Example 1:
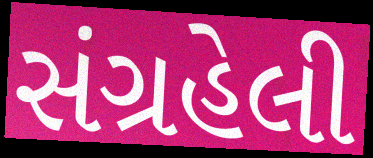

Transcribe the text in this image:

સંગ્રહેલી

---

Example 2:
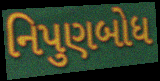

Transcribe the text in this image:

નિપુણબોધ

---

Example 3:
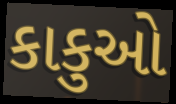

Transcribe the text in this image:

કાકુઓ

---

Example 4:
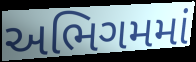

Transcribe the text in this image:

અભિગમમાં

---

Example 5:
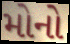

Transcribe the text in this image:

મોનો